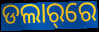
ଡଲାର୍‌ରେ